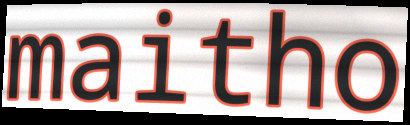
maitho